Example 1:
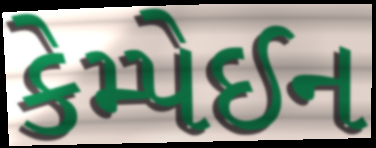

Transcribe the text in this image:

કેમ્પેઈન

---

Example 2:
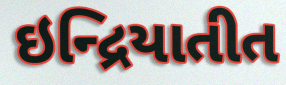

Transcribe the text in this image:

ઇન્દ્રિયાતીત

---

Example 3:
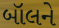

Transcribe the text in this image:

બૉલને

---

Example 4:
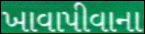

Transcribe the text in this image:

ખાવાપીવાના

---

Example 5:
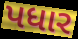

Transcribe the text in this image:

પધાર